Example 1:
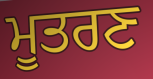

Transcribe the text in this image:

ਮੂਤਰਣ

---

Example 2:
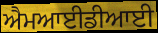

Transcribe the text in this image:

ਐਮਆਈਡੀਆਈ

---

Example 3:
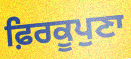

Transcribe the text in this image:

ਫ਼ਿਰਕੂਪੁਣਾ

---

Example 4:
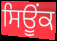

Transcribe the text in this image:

ਸਿਊਂਕ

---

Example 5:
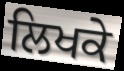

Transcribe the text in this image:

ਲਿਖਕੇ